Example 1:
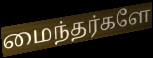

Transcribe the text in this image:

மைந்தர்களே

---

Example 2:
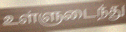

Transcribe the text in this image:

உள்ளுடைந்து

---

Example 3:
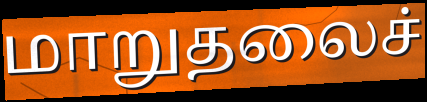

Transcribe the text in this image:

மாறுதலைச்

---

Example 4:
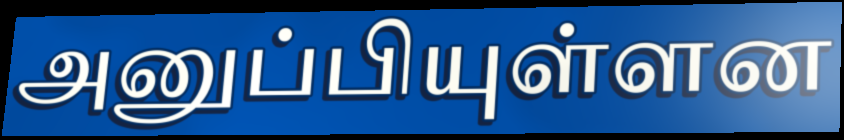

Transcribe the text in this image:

அனுப்பியுள்ளன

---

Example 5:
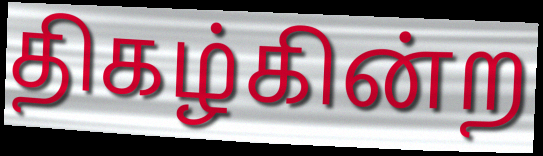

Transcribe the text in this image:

திகழ்கின்ற